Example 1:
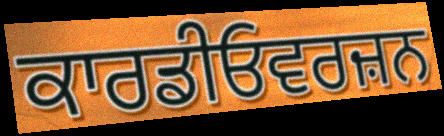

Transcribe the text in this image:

ਕਾਰਡੀਓਵਰਜ਼ਨ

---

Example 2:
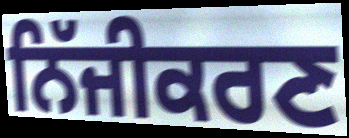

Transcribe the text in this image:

ਨਿੱਜੀਕਰਣ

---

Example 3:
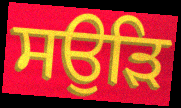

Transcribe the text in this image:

ਸਉੜਿ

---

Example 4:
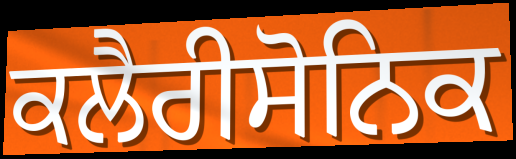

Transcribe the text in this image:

ਕਲੈਰੀਸੋਨਿਕ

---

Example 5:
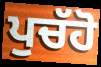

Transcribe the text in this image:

ਪੁਚੱਹੋ